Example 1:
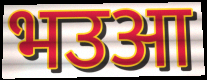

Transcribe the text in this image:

भउआ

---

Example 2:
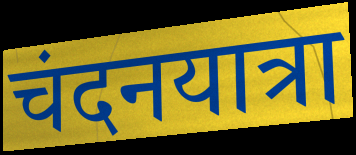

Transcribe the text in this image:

चंदनयात्रा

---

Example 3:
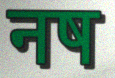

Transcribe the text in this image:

नष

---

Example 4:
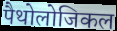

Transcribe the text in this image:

पैथोलोजिकल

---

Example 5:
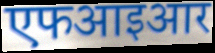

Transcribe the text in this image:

एफआइआर